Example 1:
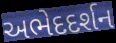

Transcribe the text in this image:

અભેદદર્શન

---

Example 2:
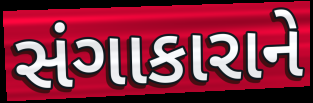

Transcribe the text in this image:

સંગાકારાને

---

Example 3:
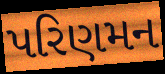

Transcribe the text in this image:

પરિણમન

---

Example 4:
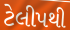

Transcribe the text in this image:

ટેલીપથી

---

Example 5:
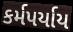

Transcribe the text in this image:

કર્મપર્યાય